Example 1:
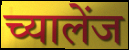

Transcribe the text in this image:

च्यालेंज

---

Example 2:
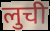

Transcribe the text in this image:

लुची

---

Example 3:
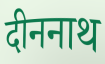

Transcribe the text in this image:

दीननाथ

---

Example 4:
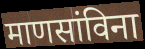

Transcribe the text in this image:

माणसांविना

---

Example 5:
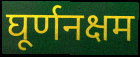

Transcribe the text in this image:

घूर्णनक्षम